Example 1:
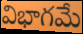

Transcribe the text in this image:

విభాగమే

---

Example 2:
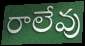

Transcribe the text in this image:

రాలేవు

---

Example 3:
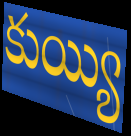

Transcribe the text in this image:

కుయ్యి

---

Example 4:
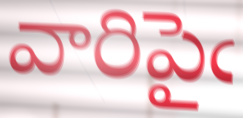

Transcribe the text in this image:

వారిపైఁ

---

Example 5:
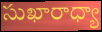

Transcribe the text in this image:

సుఖారాధ్యా